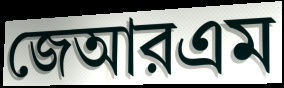
জেআরএম